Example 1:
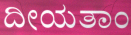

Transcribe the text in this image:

ದೀಯತಾಂ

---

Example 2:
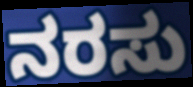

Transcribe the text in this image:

ನರಸು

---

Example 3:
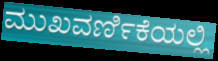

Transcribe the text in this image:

ಮುಖವರ್ಣಿಕೆಯಲ್ಲಿ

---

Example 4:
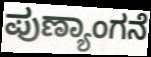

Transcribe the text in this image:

ಪುಣ್ಯಾಂಗನೆ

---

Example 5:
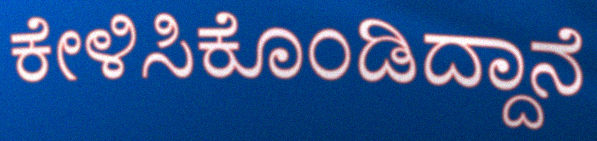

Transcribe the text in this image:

ಕೇಳಿಸಿಕೊಂಡಿದ್ದಾನೆ